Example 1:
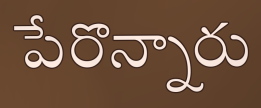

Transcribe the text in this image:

పేరొన్నారు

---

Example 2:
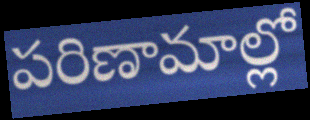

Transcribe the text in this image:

పరిణామాల్లో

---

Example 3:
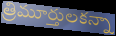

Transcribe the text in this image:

త్రిమూర్తులకన్నా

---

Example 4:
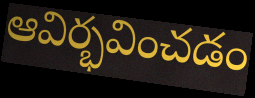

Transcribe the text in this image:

ఆవిర్భవించడం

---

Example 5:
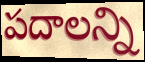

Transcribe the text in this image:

పదాలన్ని